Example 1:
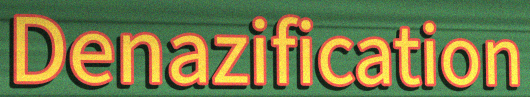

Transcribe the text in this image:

Denazification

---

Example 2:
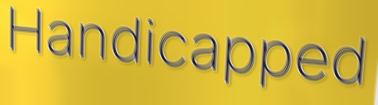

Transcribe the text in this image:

Handicapped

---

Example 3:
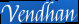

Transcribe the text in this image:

Vendhan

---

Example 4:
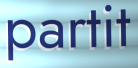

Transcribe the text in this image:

partit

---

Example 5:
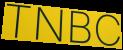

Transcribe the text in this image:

TNBC